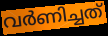
വർണിച്ചത്